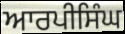
ਆਰਪੀਸਿੰਘ